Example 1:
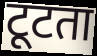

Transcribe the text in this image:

टूटता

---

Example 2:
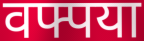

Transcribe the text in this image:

वफ्पया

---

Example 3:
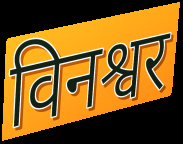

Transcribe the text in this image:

विनश्वर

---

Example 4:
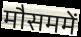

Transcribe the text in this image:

मौसममें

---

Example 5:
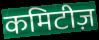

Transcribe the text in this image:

कमिटीज़